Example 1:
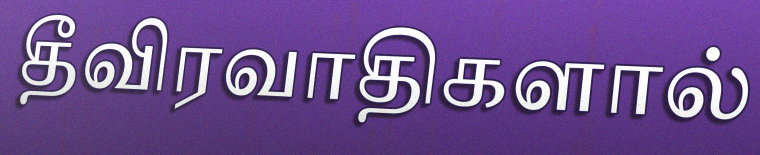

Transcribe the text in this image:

தீவிரவாதிகளால்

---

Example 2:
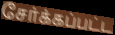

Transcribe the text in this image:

சேர்க்கப்பட்ட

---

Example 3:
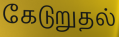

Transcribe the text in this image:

கேடுறுதல்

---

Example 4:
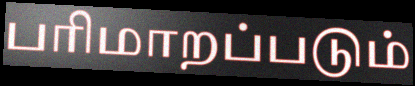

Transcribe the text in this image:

பரிமாறப்படும்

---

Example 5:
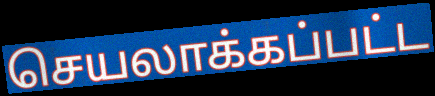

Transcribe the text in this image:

செயலாக்கப்பட்ட